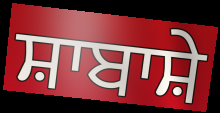
ਸ਼ਾਬਾਸ਼ੇ